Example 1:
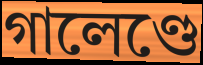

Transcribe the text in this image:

গালেণ্ডে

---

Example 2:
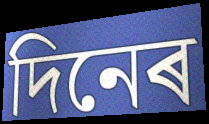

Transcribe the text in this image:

দিনেৰ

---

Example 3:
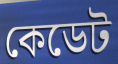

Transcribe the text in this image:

কেডেট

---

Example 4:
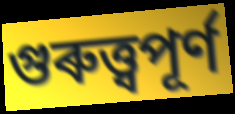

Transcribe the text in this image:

গুৰুত্ত্বপূৰ্ণ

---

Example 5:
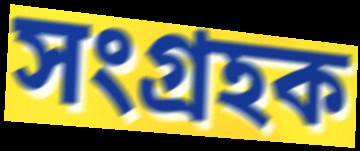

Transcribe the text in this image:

সংগ্ৰহক